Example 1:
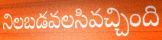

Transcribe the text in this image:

నిలబడవలసివచ్చింది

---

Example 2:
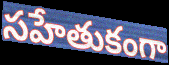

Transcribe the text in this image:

సహేతుకంగా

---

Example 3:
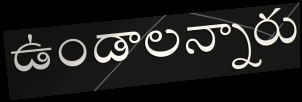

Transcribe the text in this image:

ఉండాలన్నారు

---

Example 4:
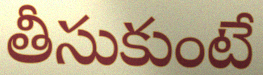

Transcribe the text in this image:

తీసుకుంటే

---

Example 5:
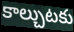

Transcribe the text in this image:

కాల్చుటకు